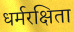
धर्मरक्षिता